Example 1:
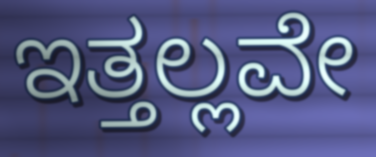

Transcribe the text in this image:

ಇತ್ತಲ್ಲವೇ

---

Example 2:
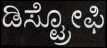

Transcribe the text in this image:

ಡಿಸ್ಟ್ರೋಫಿ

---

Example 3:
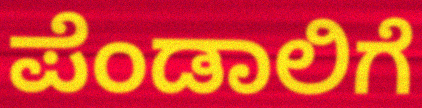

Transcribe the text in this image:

ಪೆಂಡಾಲಿಗೆ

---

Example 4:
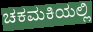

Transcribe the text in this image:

ಚಕಮಕಿಯಲ್ಲಿ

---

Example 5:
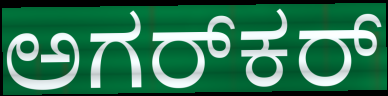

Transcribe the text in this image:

ಅಗರ್‌ಕರ್